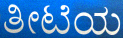
ತೀಟೆಯ